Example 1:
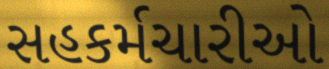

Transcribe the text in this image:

સહકર્મચારીઓ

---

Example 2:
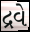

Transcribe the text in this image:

દ્રવે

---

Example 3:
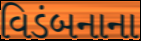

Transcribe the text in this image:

વિડંબનાના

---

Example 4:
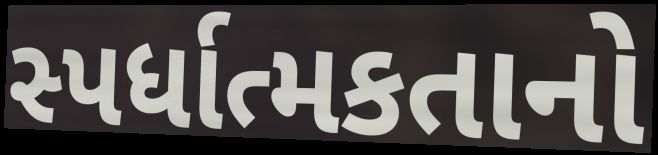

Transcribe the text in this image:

સ્પર્ધાત્મકતાનો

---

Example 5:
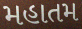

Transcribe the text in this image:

મહાતમ